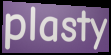
plasty